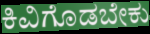
ಕಿವಿಗೊಡಬೇಕು